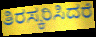
ತಿರಸ್ಕರಿಸಿದರೆ